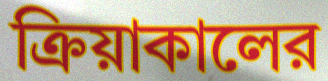
ক্রিয়াকালের